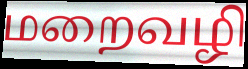
மறைவழி